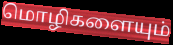
மொழிகளையும்